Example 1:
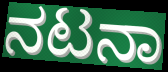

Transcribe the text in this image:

ನಟನಾ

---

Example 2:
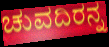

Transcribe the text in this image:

ಚುವದಿರನ್ನ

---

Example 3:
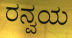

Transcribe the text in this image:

ರನ್ವಯ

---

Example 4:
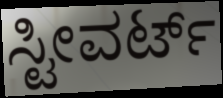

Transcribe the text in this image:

ಸ್ಟೀವರ್ಟ್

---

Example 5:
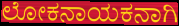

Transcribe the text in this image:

ಲೋಕನಾಯಕನಾಗಿ